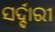
ସର୍ଦ୍ଦାରୀ